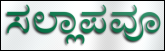
ಸಲ್ಲಾಪವೂ